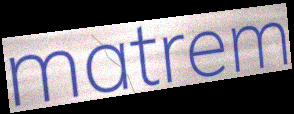
matrem